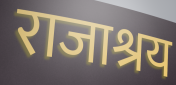
राजाश्रय